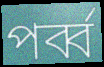
পর্ব্ব